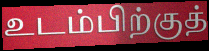
உடம்பிற்குத்